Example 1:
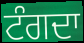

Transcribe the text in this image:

ਟੰਗਦਾ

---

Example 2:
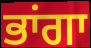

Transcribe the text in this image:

ਭਾਂਗਾ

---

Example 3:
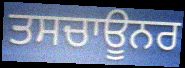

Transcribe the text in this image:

ਤਸਚਾਊਨਰ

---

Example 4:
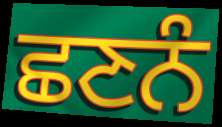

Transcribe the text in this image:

ਛਣਨੰ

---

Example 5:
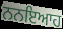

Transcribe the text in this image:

ਨਨਇਆਹ